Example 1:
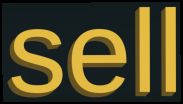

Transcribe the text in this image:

sell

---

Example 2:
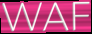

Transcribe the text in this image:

WAF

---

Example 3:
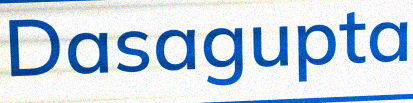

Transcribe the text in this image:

Dasagupta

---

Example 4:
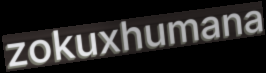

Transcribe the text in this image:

zokuxhumana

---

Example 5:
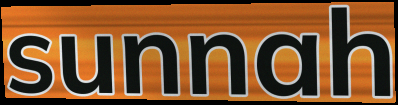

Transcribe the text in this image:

sunnah